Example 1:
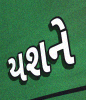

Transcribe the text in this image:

યશને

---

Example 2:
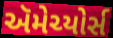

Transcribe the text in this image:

ઍમેચ્યોર્સ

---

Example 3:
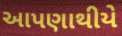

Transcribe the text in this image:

આપણાથીયે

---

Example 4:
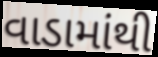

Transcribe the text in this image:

વાડામાંથી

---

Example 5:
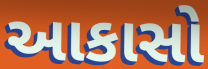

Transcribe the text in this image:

આકાસો